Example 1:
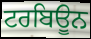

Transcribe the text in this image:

ਟਰਬਿਊਨ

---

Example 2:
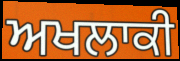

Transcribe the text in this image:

ਅਖਲਾਕੀ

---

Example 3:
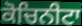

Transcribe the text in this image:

ਕੋਚਿਨੀਟਾ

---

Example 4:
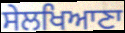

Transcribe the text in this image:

ਸੇਲਖਿਆਣਾ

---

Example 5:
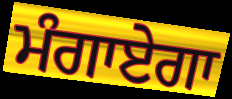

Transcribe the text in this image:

ਮੰਗਾਏਗਾ